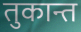
तुकान्त